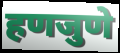
हणजुणे